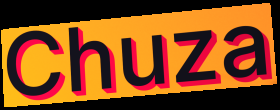
Chuza